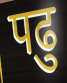
पढु